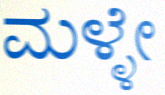
ಮಳ್ಳೇ